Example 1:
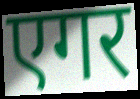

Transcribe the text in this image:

एगर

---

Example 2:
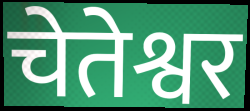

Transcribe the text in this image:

चेतेश्वर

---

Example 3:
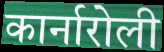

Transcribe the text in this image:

कार्नारोली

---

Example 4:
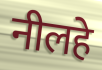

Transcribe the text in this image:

नीलहे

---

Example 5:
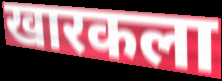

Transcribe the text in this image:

खारकला